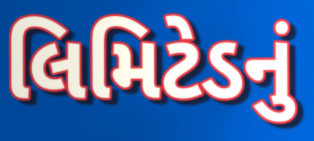
લિમિટેડનું